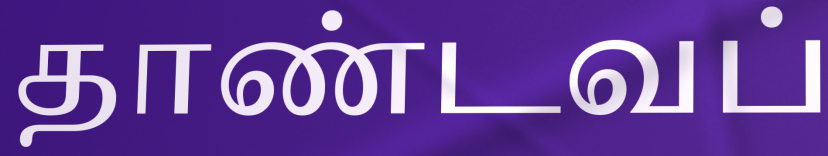
தாண்டவப்